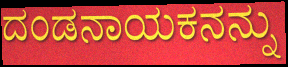
ದಂಡನಾಯಕನನ್ನು